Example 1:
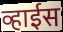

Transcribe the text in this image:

व्हाईस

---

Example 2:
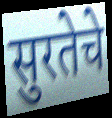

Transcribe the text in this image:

सुरतेचे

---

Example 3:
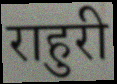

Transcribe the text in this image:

राहुरी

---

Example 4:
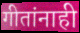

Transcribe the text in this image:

गीतांनाही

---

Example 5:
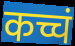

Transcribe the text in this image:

कच्चं